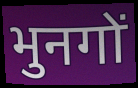
भुनगों